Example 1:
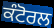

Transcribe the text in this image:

ਕੰਟੋਰਲ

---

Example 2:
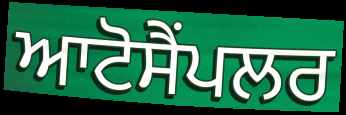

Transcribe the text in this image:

ਆਟੋਸੈਂਪਲਰ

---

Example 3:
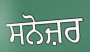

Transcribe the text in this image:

ਸਨੋਜ਼ਰ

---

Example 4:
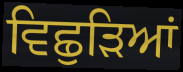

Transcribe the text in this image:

ਵਿਛੁੜਿਆਂ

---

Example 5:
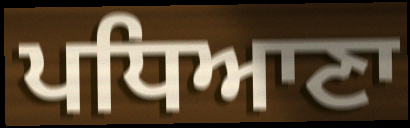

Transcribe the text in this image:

ਪਧਿਆਣਾ